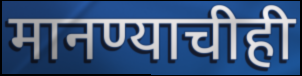
मानण्याचीही